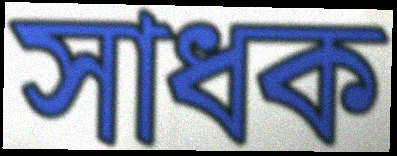
সাধক